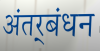
अंतर्बंधन